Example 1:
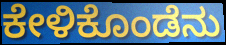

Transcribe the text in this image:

ಕೇಳಿಕೊಂಡೆನು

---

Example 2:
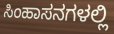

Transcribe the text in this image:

ಸಿಂಹಾಸನಗಳಲ್ಲಿ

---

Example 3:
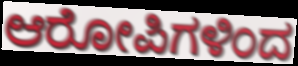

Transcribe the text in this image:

ಆರೋಪಿಗಳಿಂದ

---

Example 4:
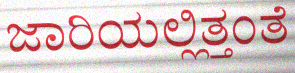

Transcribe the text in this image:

ಜಾರಿಯಲ್ಲಿತ್ತಂತೆ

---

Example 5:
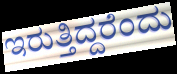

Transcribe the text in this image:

ಇರುತ್ತಿದ್ದರೆಂದು